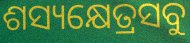
ଶସ୍ୟକ୍ଷେତ୍ରସବୁ